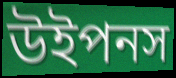
উইপনস